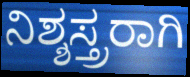
ನಿಶ್ಶಸ್ತ್ರರಾಗಿ